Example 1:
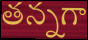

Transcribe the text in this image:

తన్నగా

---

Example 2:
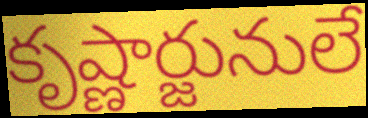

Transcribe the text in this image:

కృష్ణార్జునులే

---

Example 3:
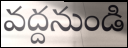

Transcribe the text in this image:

వద్దనుండి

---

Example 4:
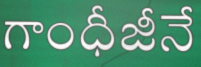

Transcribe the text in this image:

గాంధీజీనే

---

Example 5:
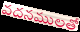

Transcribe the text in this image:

వదనములతో